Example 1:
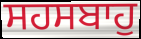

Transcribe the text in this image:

ਸਹਸਬਾਹੁ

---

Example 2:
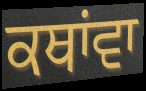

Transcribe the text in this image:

ਕਥਾਂਵਾ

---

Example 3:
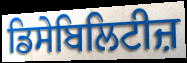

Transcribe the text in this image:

ਡਿਸੇਬਿਲਿਟੀਜ਼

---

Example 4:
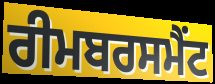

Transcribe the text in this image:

ਰੀਮਬਰਸਮੈਂਟ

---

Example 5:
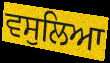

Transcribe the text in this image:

ਵਸੁਲਿਆ